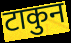
टाकुन